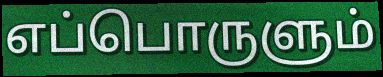
எப்பொருளும்